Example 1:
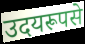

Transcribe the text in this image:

उदयरूपसे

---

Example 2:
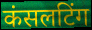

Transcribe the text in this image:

कंसलटिंग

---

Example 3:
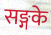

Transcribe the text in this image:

सङ्गके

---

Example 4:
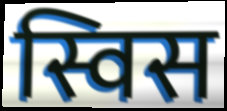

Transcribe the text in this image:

स्विस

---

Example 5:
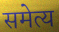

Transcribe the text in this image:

समेत्य